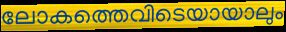
ലോകത്തെവിടെയായാലും